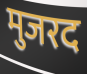
मुजरद